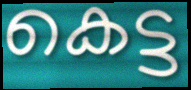
കെട്ട